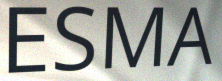
ESMA